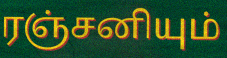
ரஞ்சனியும்